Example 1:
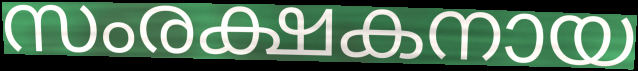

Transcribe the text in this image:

സംരക്ഷകനായ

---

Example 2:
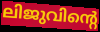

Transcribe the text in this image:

ലിജുവിന്റെ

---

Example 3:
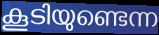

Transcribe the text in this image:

കൂടിയുണ്ടെന്ന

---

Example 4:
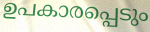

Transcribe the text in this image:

ഉപകാരപ്പെടും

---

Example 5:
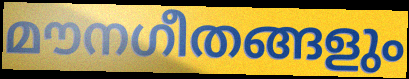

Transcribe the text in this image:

മൗനഗീതങ്ങളും